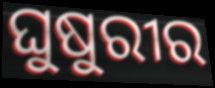
ଘୁଷୁରୀର